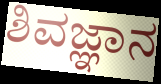
ಶಿವಜ್ಞಾನ